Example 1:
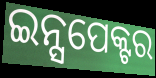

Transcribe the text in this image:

ଇନ୍ସପେକ୍ଟର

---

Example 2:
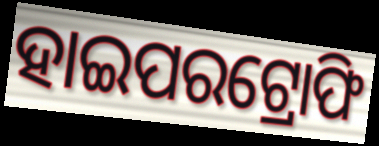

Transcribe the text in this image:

ହାଇପରଟ୍ରୋଫି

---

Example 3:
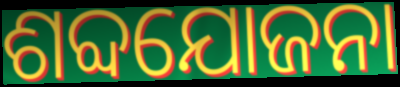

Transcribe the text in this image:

ଶବ୍ଦଯୋଜନା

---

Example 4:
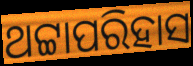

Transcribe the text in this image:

ଥଟ୍ଟାପରିହାସ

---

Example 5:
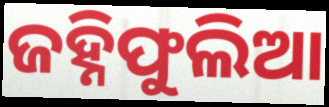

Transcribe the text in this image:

ଜହ୍ନିଫୁଲିଆ